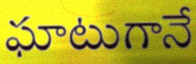
ఘాటుగానే